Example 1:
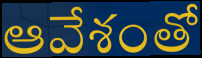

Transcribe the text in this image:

ఆవేశంతో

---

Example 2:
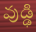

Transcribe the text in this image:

వుడ్ఢి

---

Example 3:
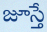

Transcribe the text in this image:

జూస్తే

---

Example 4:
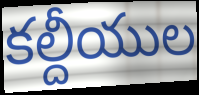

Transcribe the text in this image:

కల్దీయుల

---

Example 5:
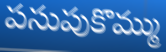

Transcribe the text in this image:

పసుపుకొమ్ము